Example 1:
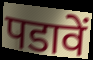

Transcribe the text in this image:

पडावें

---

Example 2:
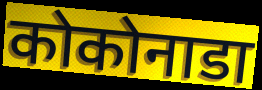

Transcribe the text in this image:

कोकोनाडा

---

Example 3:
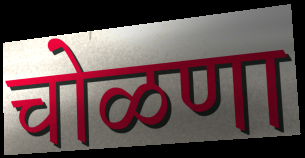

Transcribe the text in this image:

चोळणा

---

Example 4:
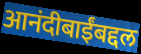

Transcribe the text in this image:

आनंदीबाईंबद्दल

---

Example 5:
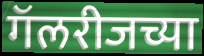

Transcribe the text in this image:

गॅलरीजच्या